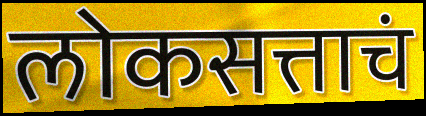
लोकसत्ताचं